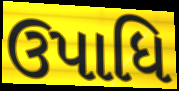
ઉપાધિ